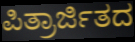
ಪಿತ್ರಾರ್ಜಿತದ